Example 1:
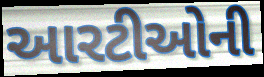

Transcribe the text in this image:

આરટીઓની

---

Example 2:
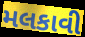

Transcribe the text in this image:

મલકાવી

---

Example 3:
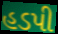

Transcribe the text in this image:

હડપી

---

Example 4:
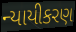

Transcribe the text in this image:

ન્યાયીકરણ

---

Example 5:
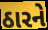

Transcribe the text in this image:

ઠારને